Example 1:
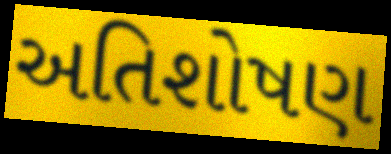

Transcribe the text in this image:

અતિશોષણ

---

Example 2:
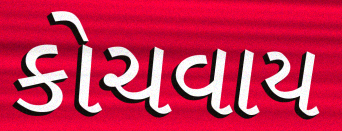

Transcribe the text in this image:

કોચવાય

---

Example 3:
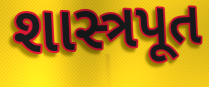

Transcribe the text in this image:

શાસ્ત્રપૂત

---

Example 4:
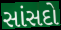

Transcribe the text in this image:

સાંસદો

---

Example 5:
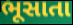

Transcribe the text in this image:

ભૂસાતા